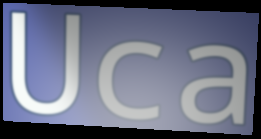
Uca